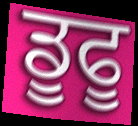
ਡੂਫੂ